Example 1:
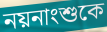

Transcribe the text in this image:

নয়নাংশুকে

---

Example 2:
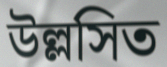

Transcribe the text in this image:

উল্লসিত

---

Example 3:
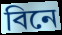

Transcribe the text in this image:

বিনে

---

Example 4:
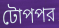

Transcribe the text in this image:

টোপপর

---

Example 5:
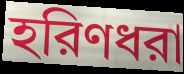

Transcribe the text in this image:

হরিণধরা